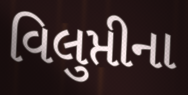
વિલુપ્તીના